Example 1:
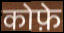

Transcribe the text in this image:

कोफ़े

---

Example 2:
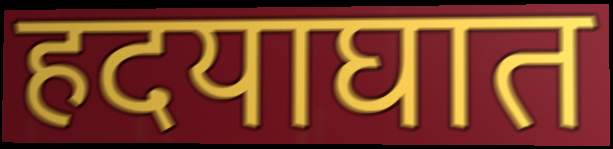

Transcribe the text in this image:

हदयाघात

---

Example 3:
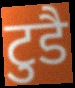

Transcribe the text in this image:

टुडै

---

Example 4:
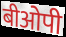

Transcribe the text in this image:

बीओपी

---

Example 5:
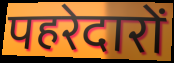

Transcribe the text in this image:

पहरेदारों